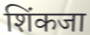
शिंकजा